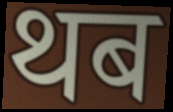
थब